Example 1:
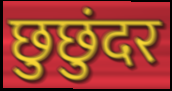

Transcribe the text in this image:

छुछुंदर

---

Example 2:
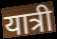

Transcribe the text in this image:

यात्री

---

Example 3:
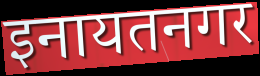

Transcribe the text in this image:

इनायतनगर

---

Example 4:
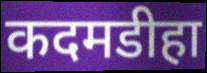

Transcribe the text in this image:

कदमडीहा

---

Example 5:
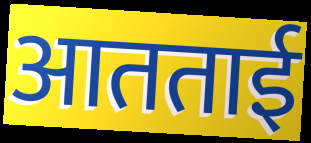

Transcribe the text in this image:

आतताई